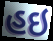
હઇ